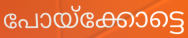
പോയ്ക്കോട്ടെ